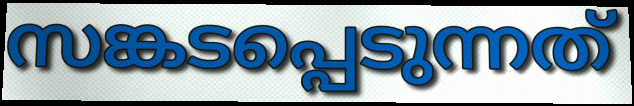
സങ്കടപ്പെടുന്നത്